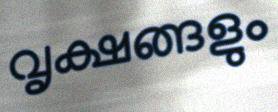
വൃക്ഷങ്ങളും